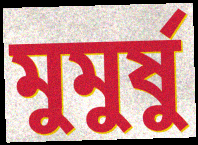
মুমুর্ষু